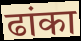
ढांका